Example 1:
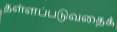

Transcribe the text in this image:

தள்ளப்படுவதைக்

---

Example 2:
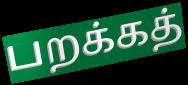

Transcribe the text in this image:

பறக்கத்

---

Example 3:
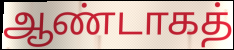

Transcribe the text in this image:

ஆண்டாகத்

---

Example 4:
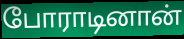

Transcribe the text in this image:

போராடினான்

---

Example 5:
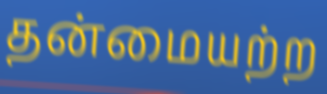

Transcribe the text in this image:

தன்மையற்ற